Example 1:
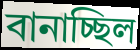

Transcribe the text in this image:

বানাচ্ছিল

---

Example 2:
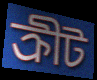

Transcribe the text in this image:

ক্রীট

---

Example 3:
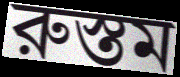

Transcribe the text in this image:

রুস্তম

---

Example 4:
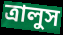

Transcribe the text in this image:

ত্রালুস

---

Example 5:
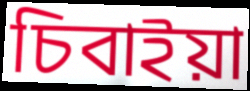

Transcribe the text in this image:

চিবাইয়া